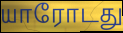
யாரோடது